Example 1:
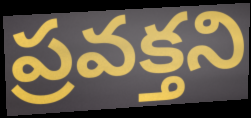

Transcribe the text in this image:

ప్రవక్తని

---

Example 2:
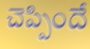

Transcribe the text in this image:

చెప్పిందే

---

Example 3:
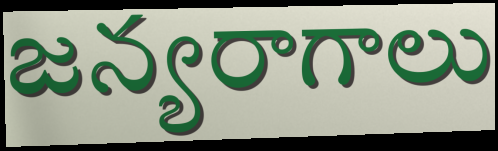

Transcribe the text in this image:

జన్యరాగాలు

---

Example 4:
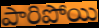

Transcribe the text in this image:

పారిపోయి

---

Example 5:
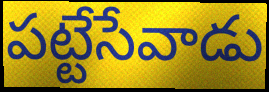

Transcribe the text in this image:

పట్టేసేవాడు